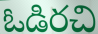
ఓడిరచి